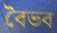
বৈভব